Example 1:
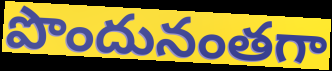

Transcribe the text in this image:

పొందునంతగా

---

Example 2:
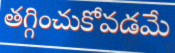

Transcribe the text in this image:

తగ్గించుకోవడమే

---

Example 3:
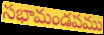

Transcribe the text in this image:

సభామండపము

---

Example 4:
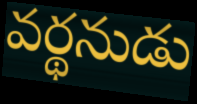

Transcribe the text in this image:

వర్థనుడు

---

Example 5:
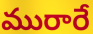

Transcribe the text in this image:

మురారే